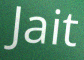
Jait